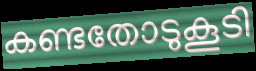
കണ്ടതോടുകൂടി